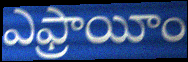
ఎఫ్రాయీం